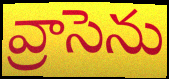
వ్రాసెను